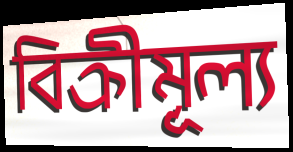
বিক্ৰীমূল্য